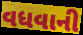
વધવાની